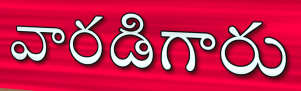
వారడిగారు